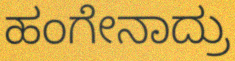
ಹಂಗೇನಾದ್ರು